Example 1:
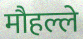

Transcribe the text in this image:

मौहल्ले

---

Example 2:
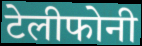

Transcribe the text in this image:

टेलीफोनी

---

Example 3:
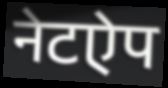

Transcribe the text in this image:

नेटऐप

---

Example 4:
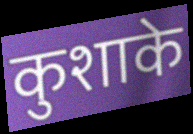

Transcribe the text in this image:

कुशाके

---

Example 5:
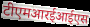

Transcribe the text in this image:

टीएमआरईआईएस